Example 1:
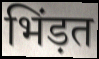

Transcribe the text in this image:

भिंड़त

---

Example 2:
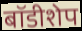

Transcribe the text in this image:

बॉडीशेप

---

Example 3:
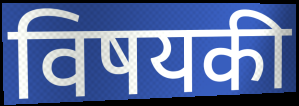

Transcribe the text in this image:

विषयकी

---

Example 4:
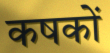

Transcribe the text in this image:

कषकों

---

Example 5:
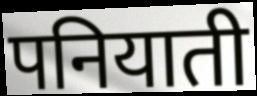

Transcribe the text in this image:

पनियाती